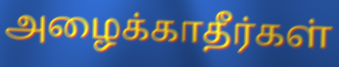
அழைக்காதீர்கள்